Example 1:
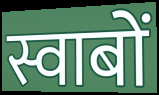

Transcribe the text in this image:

स्वाबों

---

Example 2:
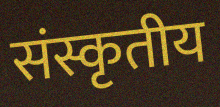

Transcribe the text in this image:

संस्कृतीय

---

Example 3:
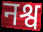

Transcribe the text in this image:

नश्व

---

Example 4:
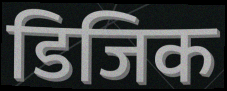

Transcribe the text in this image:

डिजिक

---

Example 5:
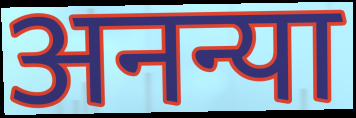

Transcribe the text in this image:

अनन्या